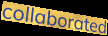
collaborated